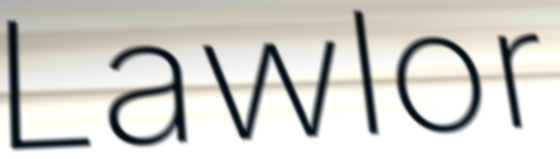
Lawlor